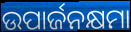
ଉପାର୍ଜନକ୍ଷମା